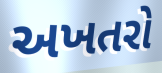
અખતરો